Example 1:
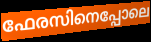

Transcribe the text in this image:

ഫേരസിനെപ്പോലെ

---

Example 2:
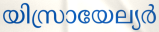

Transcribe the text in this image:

യിസ്രായേല്യർ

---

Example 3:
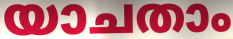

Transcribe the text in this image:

യാചതാം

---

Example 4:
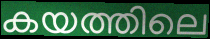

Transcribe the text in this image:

കയത്തിലെ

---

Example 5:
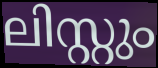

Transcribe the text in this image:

ലിസ്റ്റും